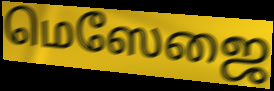
மெஸேஜை